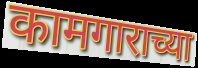
कामगाराच्या